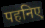
पहनिए